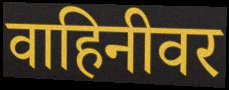
वाहिनीवर